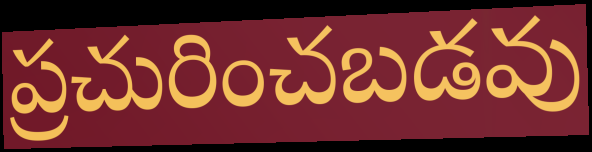
ప్రచురించబడవు